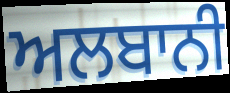
ਅਲਬਾਨੀ